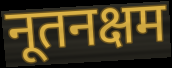
नूतनक्षम